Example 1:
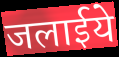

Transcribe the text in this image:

जलाईये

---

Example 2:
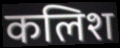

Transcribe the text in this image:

कलिश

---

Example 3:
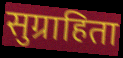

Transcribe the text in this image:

सुग्राहिता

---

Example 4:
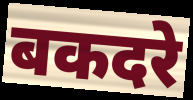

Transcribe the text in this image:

बकदरे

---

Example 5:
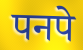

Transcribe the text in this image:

पनपे